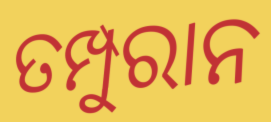
ତମ୍ପୁରାନ